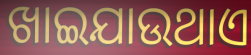
ଖାଇଯାଉଥାଏ